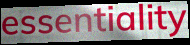
essentiality